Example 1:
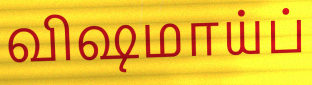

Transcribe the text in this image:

விஷமாய்ப்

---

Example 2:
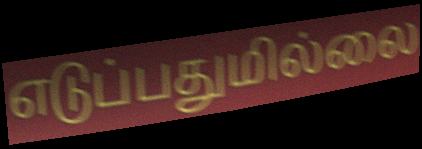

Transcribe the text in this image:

எடுப்பதுமில்லை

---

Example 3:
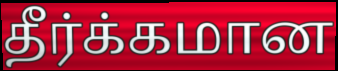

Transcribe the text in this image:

தீர்க்கமான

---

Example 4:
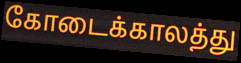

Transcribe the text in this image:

கோடைக்காலத்து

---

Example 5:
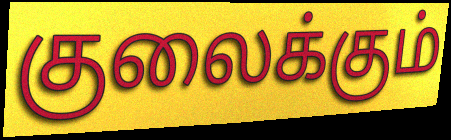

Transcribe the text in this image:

குலைக்கும்